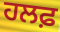
ਹਲਫ਼